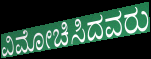
ವಿಮೋಚಿಸಿದವರು